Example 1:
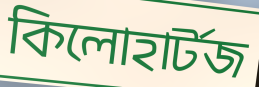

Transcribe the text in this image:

কিলোহার্টজ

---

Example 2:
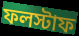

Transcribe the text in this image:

ফলস্টাফ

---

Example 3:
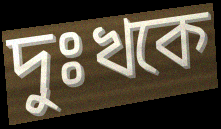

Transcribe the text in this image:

দুঃখকে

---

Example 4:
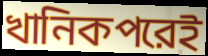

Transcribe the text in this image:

খানিকপরেই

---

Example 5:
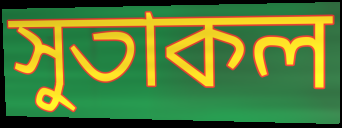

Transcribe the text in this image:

সুতাকল